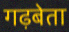
गढ़बेता